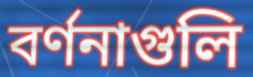
বর্ণনাগুলি